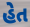
હેત